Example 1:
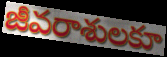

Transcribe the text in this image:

జీవరాశులకూ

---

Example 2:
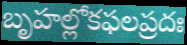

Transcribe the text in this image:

బృహల్లోకఫలప్రదః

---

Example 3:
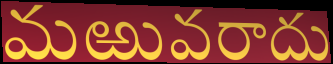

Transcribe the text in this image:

మఱువరాదు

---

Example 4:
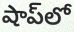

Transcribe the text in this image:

షాప్‌లో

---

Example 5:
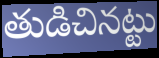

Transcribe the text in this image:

తుడిచినట్టు